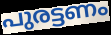
പുരട്ടണം